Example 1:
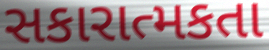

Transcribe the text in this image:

સકારાત્મકતા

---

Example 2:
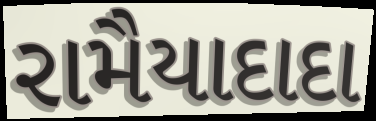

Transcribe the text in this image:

રામૈયાદાદા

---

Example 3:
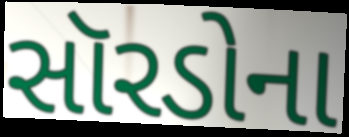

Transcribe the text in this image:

સૉરડોના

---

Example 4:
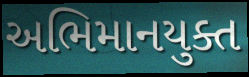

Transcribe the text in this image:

અભિમાનયુક્ત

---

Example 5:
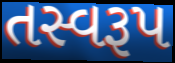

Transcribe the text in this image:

તસ્વરૂપ